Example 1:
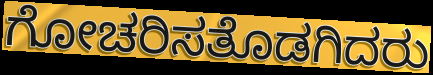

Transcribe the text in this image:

ಗೋಚರಿಸತೊಡಗಿದರು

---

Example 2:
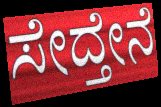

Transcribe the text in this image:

ಸೇದ್ತೇನೆ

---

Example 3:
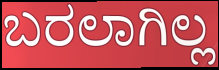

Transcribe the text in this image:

ಬರಲಾಗಿಲ್ಲ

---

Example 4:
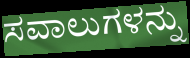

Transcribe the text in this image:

ಸವಾಲುಗಳನ್ನು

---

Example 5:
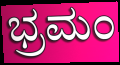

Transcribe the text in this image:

ಭ್ರಮಂ